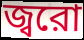
জ্বরো